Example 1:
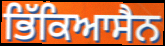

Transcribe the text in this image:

ਭਿੱਕਿਆਸੈਨ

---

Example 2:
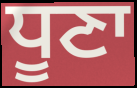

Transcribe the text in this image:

ਧੂਣਾ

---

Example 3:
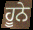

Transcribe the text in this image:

ਹੂਨੇ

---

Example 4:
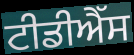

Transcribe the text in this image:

ਟੀਡੀਐੱਸ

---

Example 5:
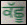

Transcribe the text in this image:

ਕੱਛੂ